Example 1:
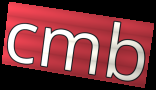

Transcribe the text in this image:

cmb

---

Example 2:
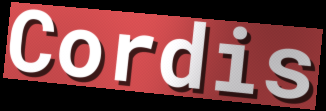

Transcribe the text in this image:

Cordis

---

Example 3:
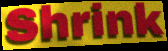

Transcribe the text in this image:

Shrink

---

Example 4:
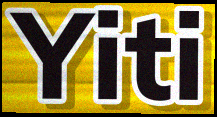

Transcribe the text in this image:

Yiti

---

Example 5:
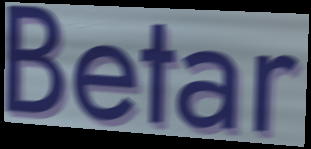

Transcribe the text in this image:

Betar